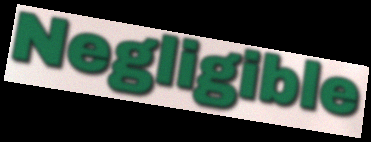
Negligible